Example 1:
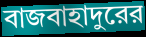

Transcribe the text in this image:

বাজবাহাদুরের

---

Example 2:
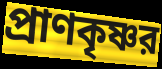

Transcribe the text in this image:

প্রাণকৃষ্ণর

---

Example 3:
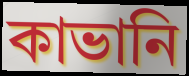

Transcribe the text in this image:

কাভানি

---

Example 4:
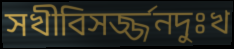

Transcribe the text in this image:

সখীবিসর্জ্জনদুঃখ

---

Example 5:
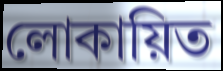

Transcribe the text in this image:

লোকায়িত